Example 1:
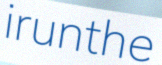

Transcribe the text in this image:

irunthe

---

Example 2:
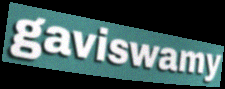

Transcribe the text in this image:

gaviswamy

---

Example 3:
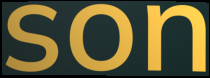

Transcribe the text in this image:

son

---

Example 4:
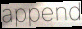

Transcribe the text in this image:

append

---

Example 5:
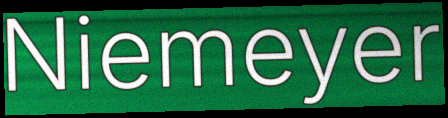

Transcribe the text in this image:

Niemeyer